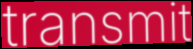
transmit